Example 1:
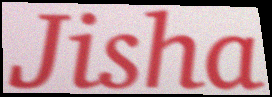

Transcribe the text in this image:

Jisha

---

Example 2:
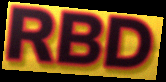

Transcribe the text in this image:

RBD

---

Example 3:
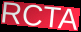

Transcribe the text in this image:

RCTA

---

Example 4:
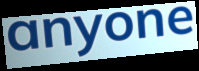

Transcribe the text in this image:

anyone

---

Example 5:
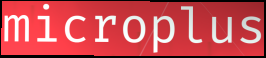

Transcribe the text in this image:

microplus